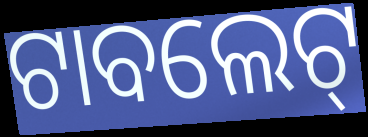
ଟାବଲେଟ୍